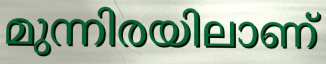
മുന്നിരയിലാണ്